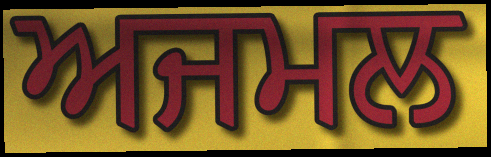
ਅਜਮਲ